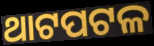
ଥାଟପଟଳ